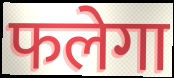
फलेगा